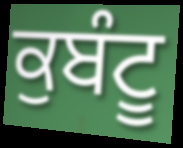
ਕੁਬੰਟੂ